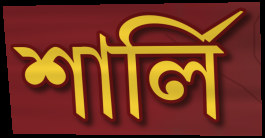
শার্লি